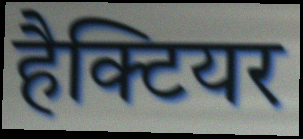
हैक्टियर